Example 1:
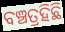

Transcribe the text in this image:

ବଞ୍ଚତ୍ରହିଛି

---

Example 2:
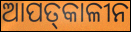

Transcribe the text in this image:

ଆପତ୍‌କାଳୀନ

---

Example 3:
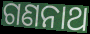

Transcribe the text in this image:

ଗଣନାଥ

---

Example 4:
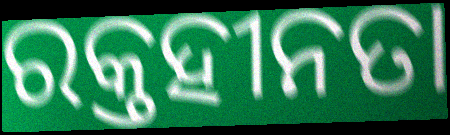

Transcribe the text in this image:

ରକ୍ତହୀନତା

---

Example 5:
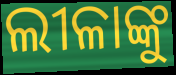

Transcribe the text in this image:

ଲୀଳାଙ୍କୁ